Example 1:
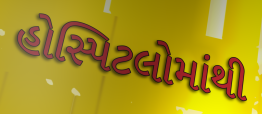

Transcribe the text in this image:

હોસ્પિટલોમાંથી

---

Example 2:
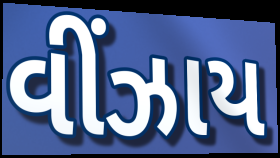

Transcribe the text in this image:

વીંઝાય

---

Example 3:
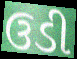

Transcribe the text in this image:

ઉડી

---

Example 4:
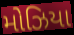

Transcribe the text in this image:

મોઝિયા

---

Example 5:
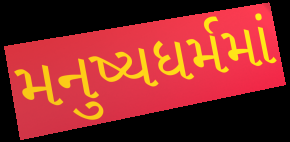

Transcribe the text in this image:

મનુષ્યધર્મમાં